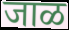
जाळ